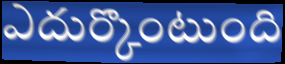
ఎదుర్కొంటుంది